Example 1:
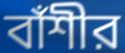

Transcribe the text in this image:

বাঁশীর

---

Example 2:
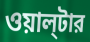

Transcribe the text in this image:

ওয়াল্‌টার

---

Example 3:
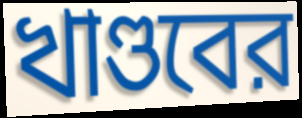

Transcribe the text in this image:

খাণ্ডবের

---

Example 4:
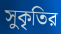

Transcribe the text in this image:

সুকৃতির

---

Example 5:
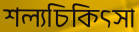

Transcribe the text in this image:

শল্যচিকিৎসা